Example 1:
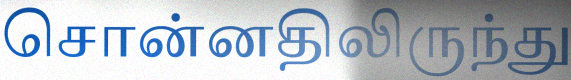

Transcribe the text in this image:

சொன்னதிலிருந்து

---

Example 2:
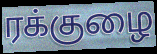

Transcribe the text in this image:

ரக்குழை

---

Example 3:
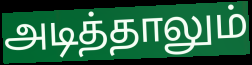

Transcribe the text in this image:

அடித்தாலும்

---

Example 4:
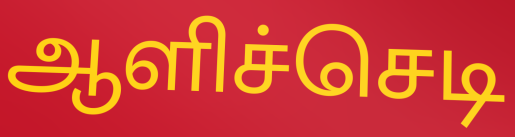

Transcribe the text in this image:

ஆளிச்செடி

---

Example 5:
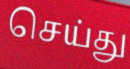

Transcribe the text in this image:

செய்து